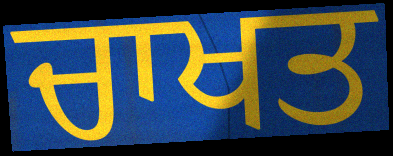
ਚਾਖਤ